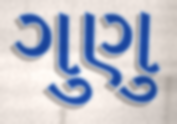
ગુણુ